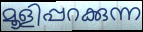
മൂളിപ്പറക്കുന്ന